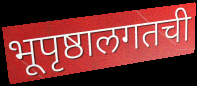
भूपृष्ठालगतची